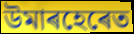
উমাৰহেৰেত